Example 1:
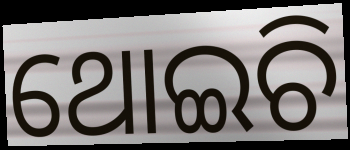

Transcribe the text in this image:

ଥୋଇଚି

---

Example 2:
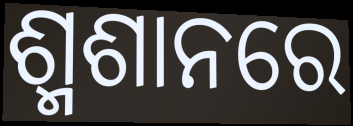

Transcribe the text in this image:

ଶ୍ମଶାନରେ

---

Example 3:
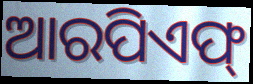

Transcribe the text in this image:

ଆରପିଏଫ୍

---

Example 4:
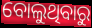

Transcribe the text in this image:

ବୋଲୁଥିବାରୁ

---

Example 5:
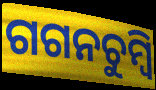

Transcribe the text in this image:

ଗଗନଚୁମ୍ବି